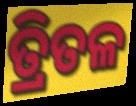
ତ୍ରିତଳ